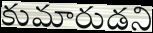
కుమారుడని